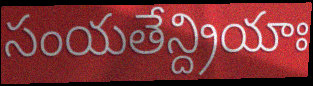
సంయతేన్ద్రియాః